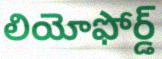
లియోఫోర్డ్